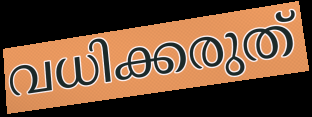
വധിക്കരുത്